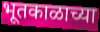
भूतकाळाच्या